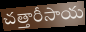
చత్తారీసాయ